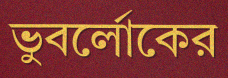
ভুবর্লোকের